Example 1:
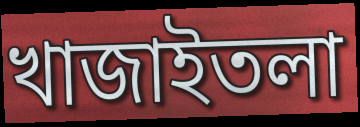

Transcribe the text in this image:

খাজাইতলা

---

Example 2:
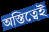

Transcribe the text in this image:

অস্তিত্বেই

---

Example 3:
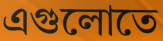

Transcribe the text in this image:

এগুলোতে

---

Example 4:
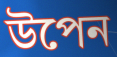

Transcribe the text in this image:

উপেন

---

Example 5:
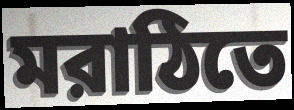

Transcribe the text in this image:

মরাঠিতে